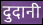
दुदानी